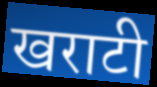
खराटी